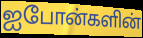
ஐபோன்களின்